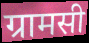
ग्रामसी